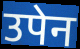
उपेन